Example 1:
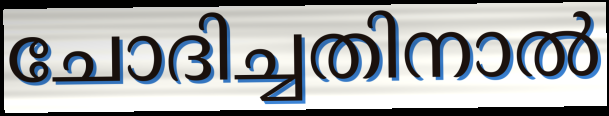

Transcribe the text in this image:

ചോദിച്ചതിനാൽ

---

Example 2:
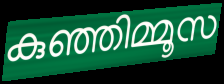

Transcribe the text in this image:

കുഞ്ഞിമ്മൂസ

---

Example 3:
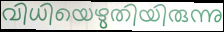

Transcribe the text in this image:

വിധിയെഴുതിയിരുന്നു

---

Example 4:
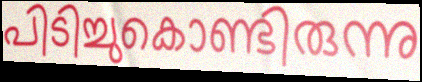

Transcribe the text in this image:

പിടിച്ചുകൊണ്ടിരുന്നു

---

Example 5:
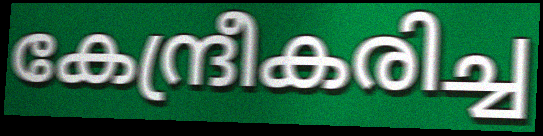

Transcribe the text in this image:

കേന്ദ്രീകരിച്ച